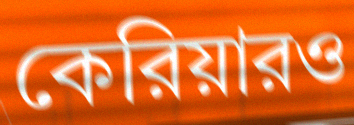
কেরিয়ারও